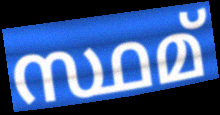
സ്ഥമ്